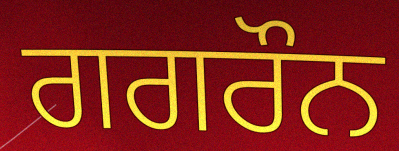
ਗਗਰੌਨ